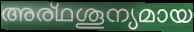
അര്ഥശൂന്യമായ